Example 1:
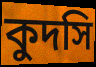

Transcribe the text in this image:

কুদসি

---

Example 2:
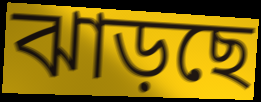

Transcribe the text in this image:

ঝাড়ছে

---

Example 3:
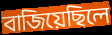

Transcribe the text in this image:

বাজিয়েছিলে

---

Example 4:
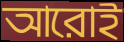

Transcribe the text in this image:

আরোই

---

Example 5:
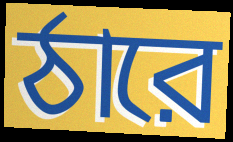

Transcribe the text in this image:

ঠারে